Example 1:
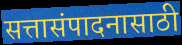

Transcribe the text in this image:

सत्तासंपादनासाठी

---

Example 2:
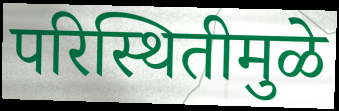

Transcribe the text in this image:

परिस्थितीमुळे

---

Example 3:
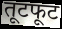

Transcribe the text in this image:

तूटफूट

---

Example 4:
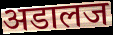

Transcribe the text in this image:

अडालज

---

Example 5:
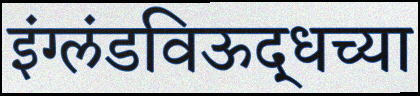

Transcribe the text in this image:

इंग्लंडविऊद्धच्या